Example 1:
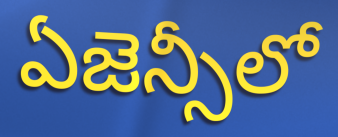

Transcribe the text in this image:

ఏజెన్సీలో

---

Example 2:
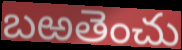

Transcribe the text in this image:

బఱతెంచు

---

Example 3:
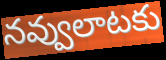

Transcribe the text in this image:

నవ్వులాటకు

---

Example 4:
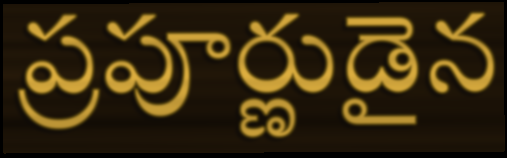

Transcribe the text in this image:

ప్రపూర్ణుడైన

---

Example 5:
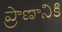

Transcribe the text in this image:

ప్రాణానికి